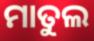
ମାତୁଲ